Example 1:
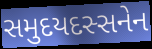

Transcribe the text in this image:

સમુદયદસ્સનેન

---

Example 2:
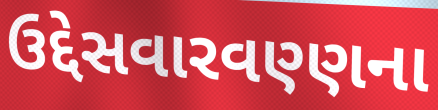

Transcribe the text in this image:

ઉદ્દેસવારવણ્ણના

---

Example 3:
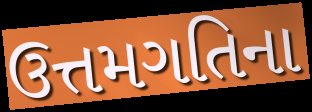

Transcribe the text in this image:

ઉત્તમગતિના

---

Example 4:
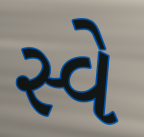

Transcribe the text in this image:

સ્વે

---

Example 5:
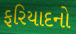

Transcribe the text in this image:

ફરિયાદનો